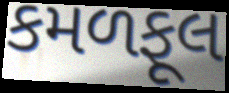
કમળફૂલ